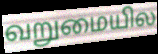
வறுமையில